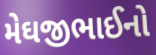
મેઘજીભાઈનો